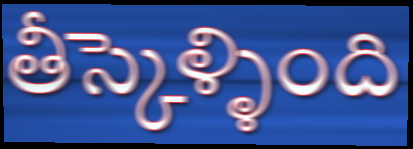
తీస్కెళ్ళింది